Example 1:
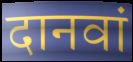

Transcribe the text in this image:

दानवां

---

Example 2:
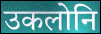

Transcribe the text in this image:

उकलोनि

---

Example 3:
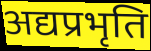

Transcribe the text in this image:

अद्यप्रभृति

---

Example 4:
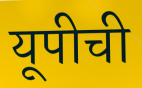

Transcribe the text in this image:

यूपीची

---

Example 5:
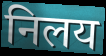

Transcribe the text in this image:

निलय